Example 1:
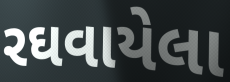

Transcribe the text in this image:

રઘવાયેલા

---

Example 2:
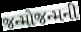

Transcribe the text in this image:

જન્મોજન્મની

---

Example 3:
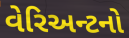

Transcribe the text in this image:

વેરિઅન્ટનો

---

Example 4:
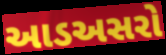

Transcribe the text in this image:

આડઅસરો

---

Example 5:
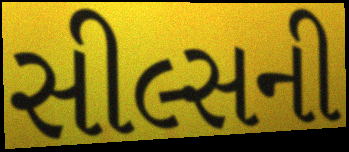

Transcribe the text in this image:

સીલ્સની